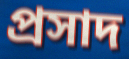
প্ৰসাদ